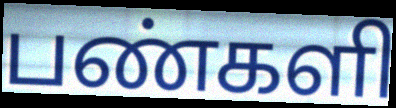
பண்களி